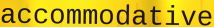
accommodative